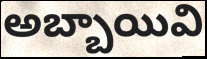
అబ్బాయివి